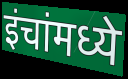
इंचांमध्ये